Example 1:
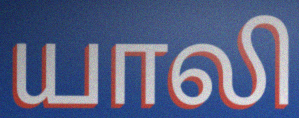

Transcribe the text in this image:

யாலி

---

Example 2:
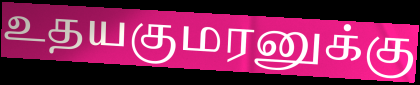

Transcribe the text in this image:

உதயகுமரனுக்கு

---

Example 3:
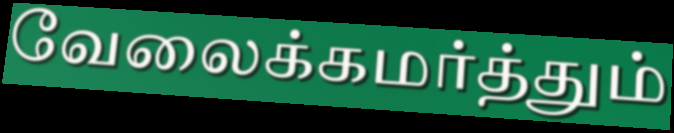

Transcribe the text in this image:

வேலைக்கமர்த்தும்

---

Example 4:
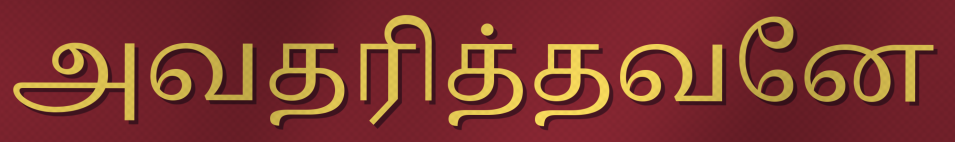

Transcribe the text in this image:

அவதரித்தவனே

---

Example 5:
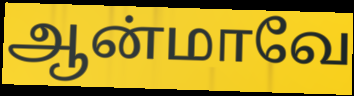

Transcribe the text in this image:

ஆன்மாவே